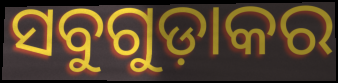
ସବୁଗୁଡ଼ାକର